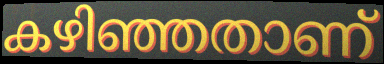
കഴിഞ്ഞതാണ്